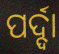
ପର୍ଦ୍ଦା